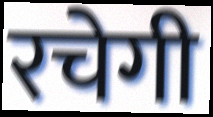
रचेगी